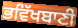
ਭਵਿੱਖਬਾਣੀ